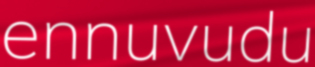
ennuvudu